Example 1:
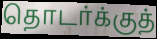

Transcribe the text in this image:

தொடர்க்குத்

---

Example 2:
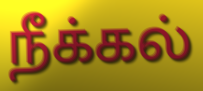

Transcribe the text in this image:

நீக்கல்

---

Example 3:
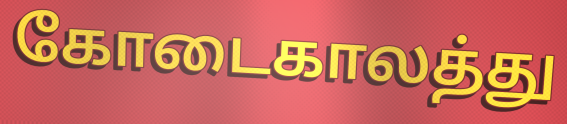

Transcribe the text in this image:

கோடைகாலத்து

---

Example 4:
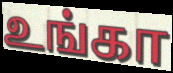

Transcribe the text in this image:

உங்கா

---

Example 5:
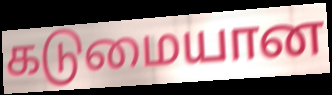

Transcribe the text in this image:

கடுமையான